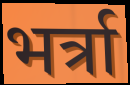
भर्त्रा